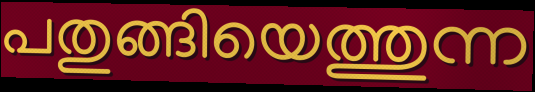
പതുങ്ങിയെത്തുന്ന